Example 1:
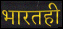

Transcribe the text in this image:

भारतही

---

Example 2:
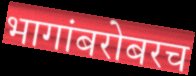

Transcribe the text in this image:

भागांबरोबरच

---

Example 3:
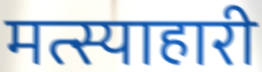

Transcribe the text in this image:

मत्स्याहारी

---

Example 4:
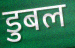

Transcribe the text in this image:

डुबल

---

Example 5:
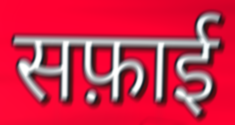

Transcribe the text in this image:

सफ़ाई